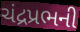
ચંદ્રપ્રભની